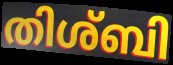
തിശ്ബി